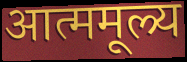
आत्ममूल्य